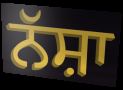
ਨੱਸ਼ਾ